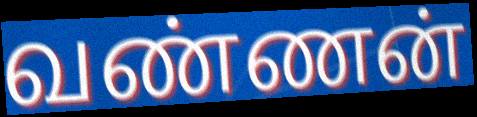
வண்ணன்